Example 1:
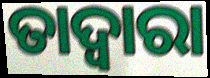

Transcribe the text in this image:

ତାଦ୍ବାରା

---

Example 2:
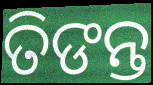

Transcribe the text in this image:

ତିଙନ୍ତ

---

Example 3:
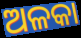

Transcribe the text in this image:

ଅଳକା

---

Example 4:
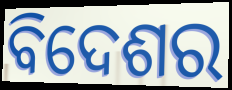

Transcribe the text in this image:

ବିଦେଶର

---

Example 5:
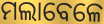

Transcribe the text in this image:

ମଲାବେଳେ